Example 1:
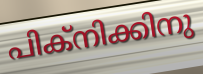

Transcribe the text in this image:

പിക്നിക്കിനു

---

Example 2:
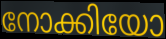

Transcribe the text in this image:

നോക്കിയോ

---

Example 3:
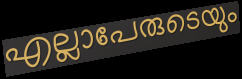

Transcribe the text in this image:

എല്ലാപേരുടെയും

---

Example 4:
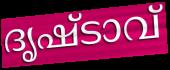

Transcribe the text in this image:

ദൃഷ്ടാവ്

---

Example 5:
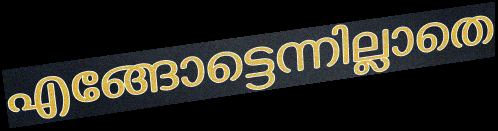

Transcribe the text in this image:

എങ്ങോട്ടെന്നില്ലാതെ